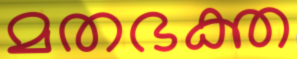
മതഭക്ത